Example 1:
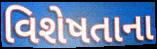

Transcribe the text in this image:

વિશેષતાના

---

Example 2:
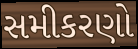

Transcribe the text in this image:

સમીકરણો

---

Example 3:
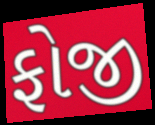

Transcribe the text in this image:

ફોજી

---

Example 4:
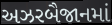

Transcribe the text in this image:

અઝરબૈજાનમાં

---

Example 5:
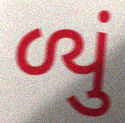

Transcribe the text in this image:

ળ્યું